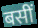
बसीं